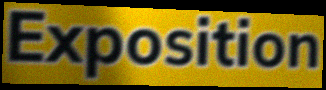
Exposition